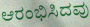
ಆರಂಭಿಸಿದವು